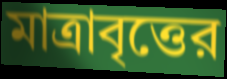
মাত্রাবৃত্তের